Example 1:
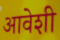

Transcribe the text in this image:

आवेशी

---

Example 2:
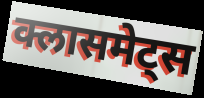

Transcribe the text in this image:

क्लासमेट्स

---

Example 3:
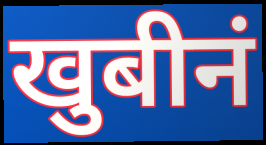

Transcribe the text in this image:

खुबीनं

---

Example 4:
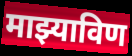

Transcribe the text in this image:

माझ्याविण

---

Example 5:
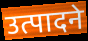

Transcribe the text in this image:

उत्पादने